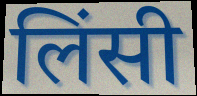
लिंसी